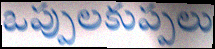
ఒప్పులకుప్పలు